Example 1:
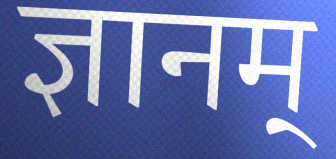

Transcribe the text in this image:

ज्ञानम्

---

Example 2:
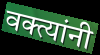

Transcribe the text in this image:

वक्त्यांनी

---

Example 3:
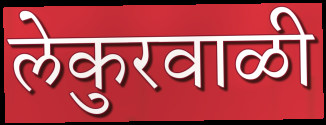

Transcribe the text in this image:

लेकुरवाळी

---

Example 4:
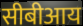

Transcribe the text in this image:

सीबीआय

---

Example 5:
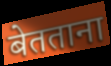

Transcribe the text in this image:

बेतताना